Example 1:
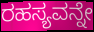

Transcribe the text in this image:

ರಹಸ್ಯವನ್ನೇ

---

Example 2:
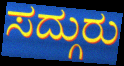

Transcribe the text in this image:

ಸದ್ಗುರು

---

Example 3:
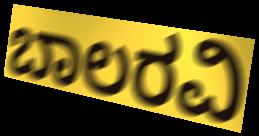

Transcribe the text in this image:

ಬಾಲರವಿ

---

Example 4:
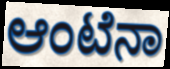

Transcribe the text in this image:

ಆಂಟೆನಾ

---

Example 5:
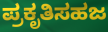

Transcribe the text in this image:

ಪ್ರಕೃತಿಸಹಜ